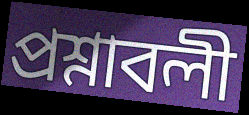
প্রশ্নাবলী